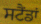
ਸਟੈਂਡਾਂ